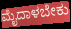
ಮೈದಾಳಬೇಕು